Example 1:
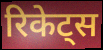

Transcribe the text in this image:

रिकेट्स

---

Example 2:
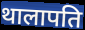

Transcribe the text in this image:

थालापति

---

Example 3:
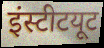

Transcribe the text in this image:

इंस्टीटयूट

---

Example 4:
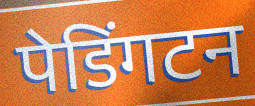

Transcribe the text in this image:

पेडिंगटन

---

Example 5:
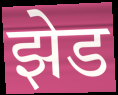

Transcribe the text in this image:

झेड